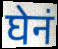
घेनं